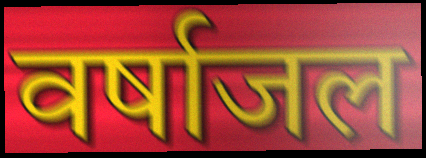
वर्षाजल